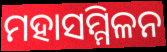
ମହାସମ୍ମିଳନ